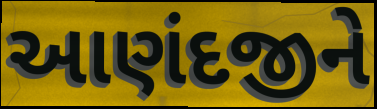
આણંદજીને